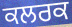
ਕਲਰਕ